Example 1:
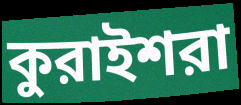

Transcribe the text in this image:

কুরাইশরা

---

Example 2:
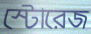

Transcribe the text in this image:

স্টোরেজ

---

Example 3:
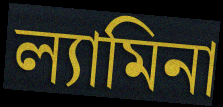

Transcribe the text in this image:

ল্যামিনা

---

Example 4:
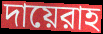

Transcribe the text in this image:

দায়েরাহ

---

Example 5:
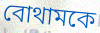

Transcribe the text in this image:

বোথামকে